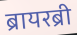
ब्रायरब्री